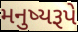
મનુષ્યરૂપે